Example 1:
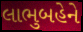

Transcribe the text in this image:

લાભુબહેને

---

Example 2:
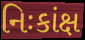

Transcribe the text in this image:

નિઃકાંક્ષ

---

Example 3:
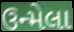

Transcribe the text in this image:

ઉન્મેલા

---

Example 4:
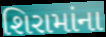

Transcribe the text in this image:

શિરામાંના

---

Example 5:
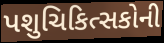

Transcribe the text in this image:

પશુચિકિત્સકોની